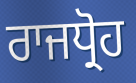
ਰਾਜਧ੍ਰੋਹ